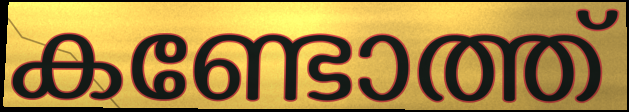
കണ്ടോത്ത്